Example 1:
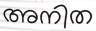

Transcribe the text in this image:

അനിത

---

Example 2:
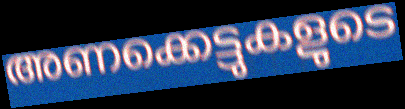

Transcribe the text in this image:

അണക്കെട്ടുകളുടെ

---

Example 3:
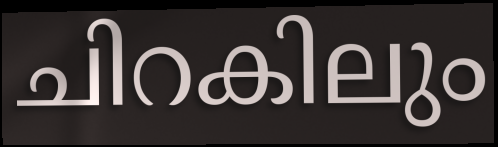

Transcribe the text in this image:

ചിറകിലും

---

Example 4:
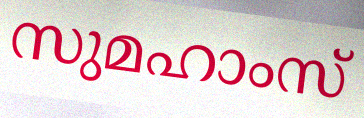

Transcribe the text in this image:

സുമഹാംസ്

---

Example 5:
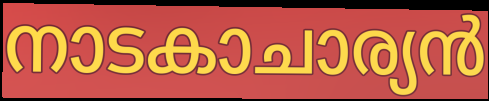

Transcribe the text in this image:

നാടകാചാര്യൻ